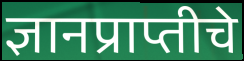
ज्ञानप्राप्तीचे